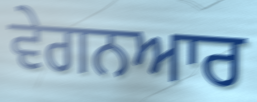
ਵੇਗਨਆਰ